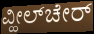
ವ್ಹೀಲ್‌ಚೇರ್